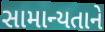
સામાન્યતાને